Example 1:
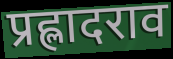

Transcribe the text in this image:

प्रह्लादराव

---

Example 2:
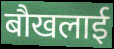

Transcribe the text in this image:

बौखलाई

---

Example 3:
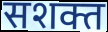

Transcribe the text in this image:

सशक्‍त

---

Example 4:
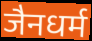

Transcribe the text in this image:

जैनधर्म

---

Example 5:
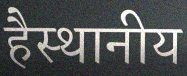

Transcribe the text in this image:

हैस्थानीय